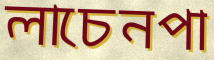
লাচেনপা